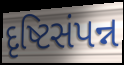
દૃષ્ટિસંપન્ન